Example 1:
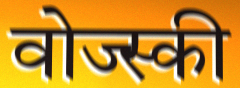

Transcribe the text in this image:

वोज्स्की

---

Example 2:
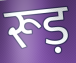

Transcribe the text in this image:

रूड़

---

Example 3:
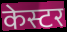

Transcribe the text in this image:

केस्टर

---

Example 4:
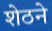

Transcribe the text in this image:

शेठने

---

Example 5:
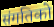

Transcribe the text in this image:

संगतिको